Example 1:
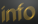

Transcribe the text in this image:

info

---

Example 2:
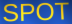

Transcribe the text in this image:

SPOT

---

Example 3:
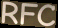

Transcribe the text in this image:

RFC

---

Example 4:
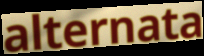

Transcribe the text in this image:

alternata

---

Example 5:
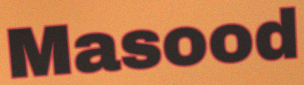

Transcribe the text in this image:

Masood